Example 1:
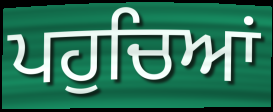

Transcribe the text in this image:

ਪਹੁਚਿਆਂ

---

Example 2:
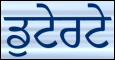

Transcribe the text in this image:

ਡੁਟੇਰਟੇ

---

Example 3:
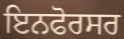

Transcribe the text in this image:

ਇਨਫੋਰਸਰ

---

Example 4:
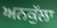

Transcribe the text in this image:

ਅਨਕੁੱਲਾ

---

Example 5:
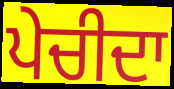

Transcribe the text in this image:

ਪੇਚੀਦਾ